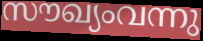
സൗഖ്യംവന്നു